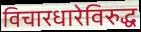
विचारधारेविरुद्ध